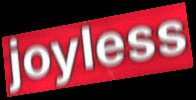
joyless